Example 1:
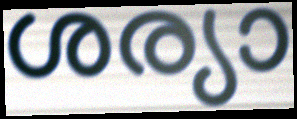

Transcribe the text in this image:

ശര്യാ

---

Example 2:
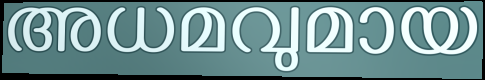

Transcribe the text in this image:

അധമവുമായ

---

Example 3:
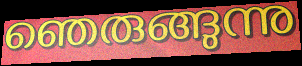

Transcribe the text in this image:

ഞെരുങ്ങുന്നു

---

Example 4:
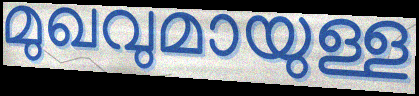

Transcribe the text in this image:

മുഖവുമായുള്ള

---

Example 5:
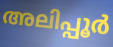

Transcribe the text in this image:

അലിപ്പൂർ